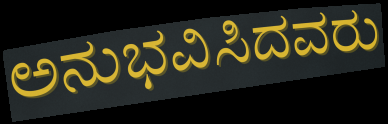
ಅನುಭವಿಸಿದವರು